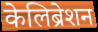
केलिब्रेशन